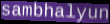
sambhalyun